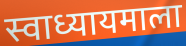
स्वाध्यायमाला